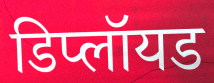
डिप्लॉयड